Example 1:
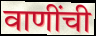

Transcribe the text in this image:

वाणींची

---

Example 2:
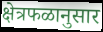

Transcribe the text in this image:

क्षेत्रफळानुसार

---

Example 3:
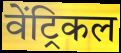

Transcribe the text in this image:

वेंट्रिकल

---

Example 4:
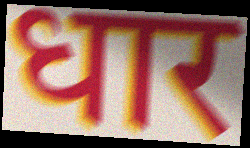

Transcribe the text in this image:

धार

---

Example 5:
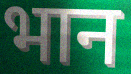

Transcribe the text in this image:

भान